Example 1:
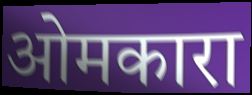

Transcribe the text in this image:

ओमकारा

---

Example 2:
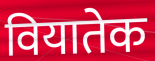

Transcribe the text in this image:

वियातेक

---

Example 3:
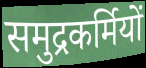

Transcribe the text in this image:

समुद्रकर्मियों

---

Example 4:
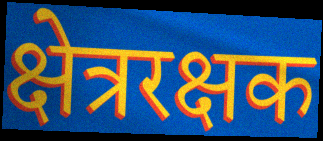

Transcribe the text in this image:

क्षेत्ररक्षक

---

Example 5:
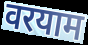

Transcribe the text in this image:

वरयाम